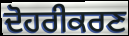
ਦੋਹਰੀਕਰਣ